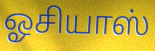
ஓசியாஸ்